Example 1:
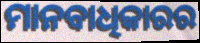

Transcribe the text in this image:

ମାନବାଧିକାରର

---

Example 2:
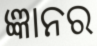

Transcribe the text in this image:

ଜ୍ଞାନର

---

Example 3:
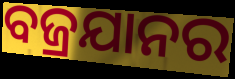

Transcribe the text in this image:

ବଜ୍ରଯାନର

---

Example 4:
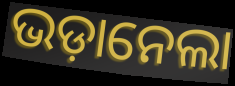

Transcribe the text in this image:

ଭଡ଼ାନେଲା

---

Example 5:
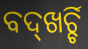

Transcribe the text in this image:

ବଦ୍‌ଖର୍ଚ୍ଚି